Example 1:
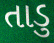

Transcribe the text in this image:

તાડુ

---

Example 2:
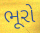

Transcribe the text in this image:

ભૂરો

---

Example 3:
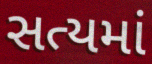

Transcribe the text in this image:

સત્યમાં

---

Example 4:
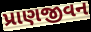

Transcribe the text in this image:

પ્રાણજીવન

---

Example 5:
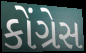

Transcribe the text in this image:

કોંગ્રેસ